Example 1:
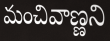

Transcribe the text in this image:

మంచివాణ్ణని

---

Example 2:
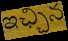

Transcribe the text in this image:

ఇఛ్చిన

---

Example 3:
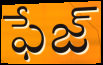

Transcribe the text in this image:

ఫేజ్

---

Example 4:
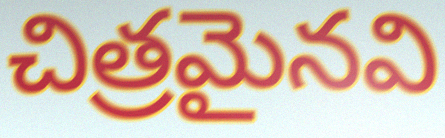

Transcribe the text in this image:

చిత్రమైనవి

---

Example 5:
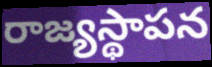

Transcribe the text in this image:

రాజ్యస్థాపన